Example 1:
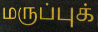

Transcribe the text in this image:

மருப்புக்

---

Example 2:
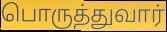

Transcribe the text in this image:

பொருத்துவார்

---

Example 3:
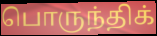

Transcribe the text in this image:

பொருந்திக்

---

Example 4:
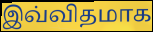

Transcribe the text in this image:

இவ்விதமாக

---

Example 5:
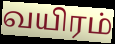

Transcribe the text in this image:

வயிரம்